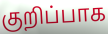
குறிப்பாக